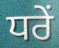
ਧਰੇਂ